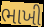
ભાખી